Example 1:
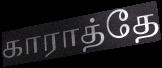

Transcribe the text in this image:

காராத்தே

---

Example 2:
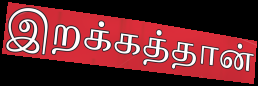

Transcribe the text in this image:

இறக்கத்தான்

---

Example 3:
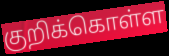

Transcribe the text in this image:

குறிக்கொள்ள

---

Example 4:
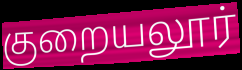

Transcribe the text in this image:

குறையலூர்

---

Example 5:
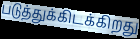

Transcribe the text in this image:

படுத்துக்கிடக்கிறது